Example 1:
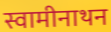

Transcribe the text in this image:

स्वामीनाथन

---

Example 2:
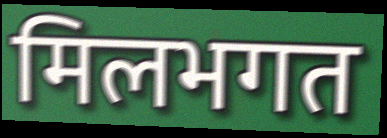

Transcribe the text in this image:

मिलभगत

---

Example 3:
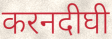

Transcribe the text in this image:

करनदीघी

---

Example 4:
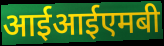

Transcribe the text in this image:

आईआईएमबी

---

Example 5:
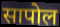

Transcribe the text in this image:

सापोल